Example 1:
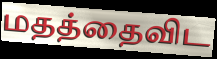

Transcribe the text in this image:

மதத்தைவிட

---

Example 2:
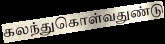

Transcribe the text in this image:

கலந்துகொள்வதுண்டு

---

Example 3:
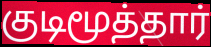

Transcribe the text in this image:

குடிமூத்தார்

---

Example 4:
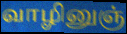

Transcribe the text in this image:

வாழினுஞ்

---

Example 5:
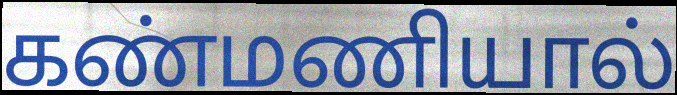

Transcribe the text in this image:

கண்மணியால்